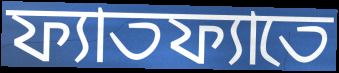
ফ্যাতফ্যাতে